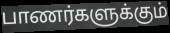
பாணர்களுக்கும்